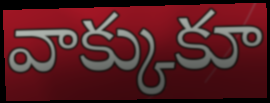
వాక్కుకూ